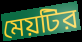
মেয়টির